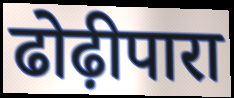
ढोढ़ीपारा